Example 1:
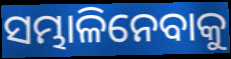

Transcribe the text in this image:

ସମ୍ଭାଳିନେବାକୁ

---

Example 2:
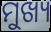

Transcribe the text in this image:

ମୁଖ୍ୟ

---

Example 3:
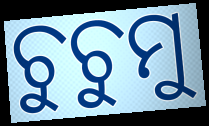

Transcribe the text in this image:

ଚୁଚୁମୁ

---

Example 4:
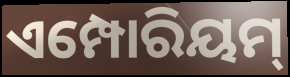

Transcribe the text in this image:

ଏମ୍ପୋରିୟମ୍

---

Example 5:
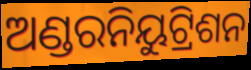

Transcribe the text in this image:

ଅଣ୍ଡରନିୟୁଟ୍ରିଶନ